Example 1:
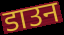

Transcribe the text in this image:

डाउन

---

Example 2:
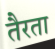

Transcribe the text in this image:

तैरता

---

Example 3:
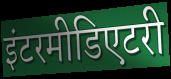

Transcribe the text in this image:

इंटरमीडिएटरी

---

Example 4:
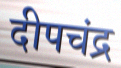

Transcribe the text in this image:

दीपचंद्र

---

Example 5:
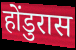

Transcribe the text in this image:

होंडुरास